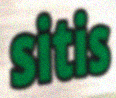
sitis